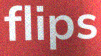
flips